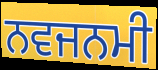
ਨਵਜਨਮੀ